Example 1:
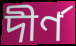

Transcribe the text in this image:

দীর্ণ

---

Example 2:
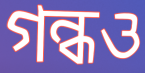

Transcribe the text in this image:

গন্ধও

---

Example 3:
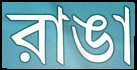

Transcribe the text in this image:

রাঙা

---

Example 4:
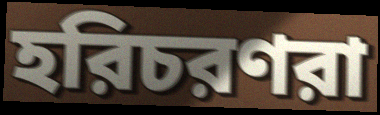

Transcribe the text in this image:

হরিচরণরা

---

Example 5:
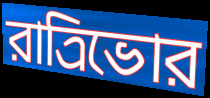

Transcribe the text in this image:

রাত্রিভোর